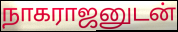
நாகராஜனுடன்